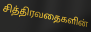
சித்திரவதைகளின்